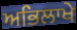
ਅਭਿਲਾਖੇ